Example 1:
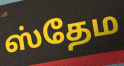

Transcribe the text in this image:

ஸ்தேம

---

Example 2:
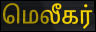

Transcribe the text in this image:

மெலீகர்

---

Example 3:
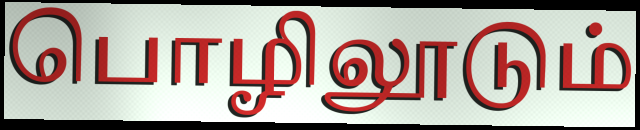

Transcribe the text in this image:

பொழிலூடும்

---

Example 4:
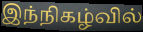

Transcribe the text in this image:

இந்நிகழ்வில்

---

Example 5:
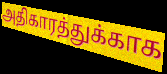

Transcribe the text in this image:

அதிகாரத்துக்காக